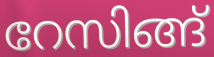
റേസിങ്ങ്